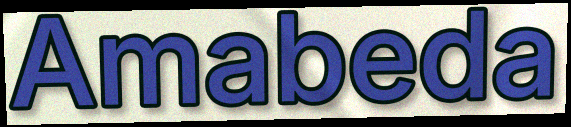
Amabeda